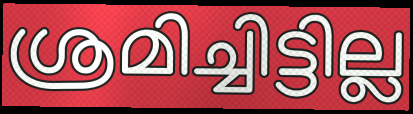
ശ്രമിച്ചിട്ടില്ല